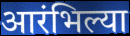
आरंभिल्या